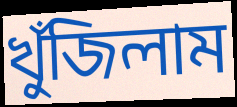
খুঁজিলাম